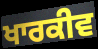
ਖਾਰਕੀਵ